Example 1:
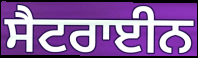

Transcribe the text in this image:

ਸੈਟਰਾਈਨ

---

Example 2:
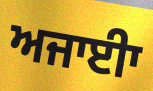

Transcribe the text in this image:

ਅਜਾਈਾ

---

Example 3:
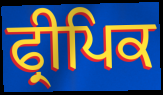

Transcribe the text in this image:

ਫ੍ਰੀਪਿਕ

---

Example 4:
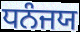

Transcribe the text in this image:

ਧਨੰਜਯ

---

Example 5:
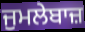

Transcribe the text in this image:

ਜੁਮਲੇਬਾਜ਼